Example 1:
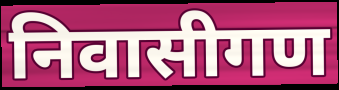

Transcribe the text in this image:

निवासीगण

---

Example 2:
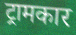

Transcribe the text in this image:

ट्रामकार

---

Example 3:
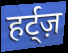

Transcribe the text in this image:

हर्ट्ज़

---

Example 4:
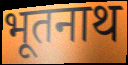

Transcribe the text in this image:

भूतनाथ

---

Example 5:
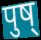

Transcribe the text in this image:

पुष्